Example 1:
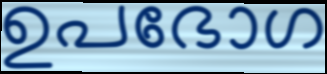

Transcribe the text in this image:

ഉപഭോഗ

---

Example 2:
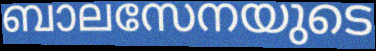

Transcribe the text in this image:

ബാലസേനയുടെ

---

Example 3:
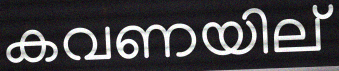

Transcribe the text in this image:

കവണയില്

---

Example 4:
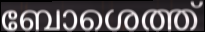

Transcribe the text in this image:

ബോശെത്ത്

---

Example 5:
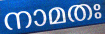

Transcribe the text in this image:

നാമതഃ